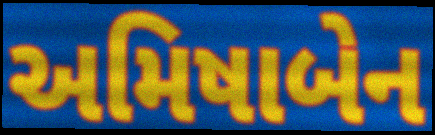
અમિષાબેન